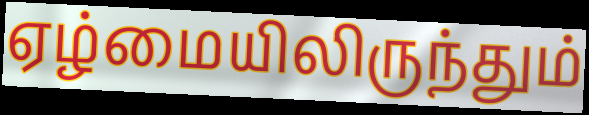
ஏழ்மையிலிருந்தும்